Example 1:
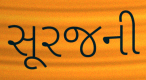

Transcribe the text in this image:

સૂરજની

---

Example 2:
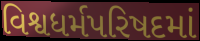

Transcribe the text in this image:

વિશ્વધર્મપરિષદમાં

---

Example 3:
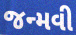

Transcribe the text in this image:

જન્મવી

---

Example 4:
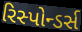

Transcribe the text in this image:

રિસ્પોન્ડર્સ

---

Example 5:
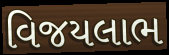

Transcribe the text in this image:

વિજયલાભ